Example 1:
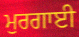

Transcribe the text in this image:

ਮੁਰਗਾਈ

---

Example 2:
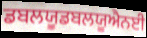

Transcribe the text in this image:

ਡਬਲਯੂਡਬਲਯੂਐਨਈ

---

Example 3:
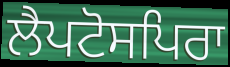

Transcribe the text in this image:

ਲੈਪਟੋਸਪਿਰਾ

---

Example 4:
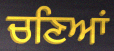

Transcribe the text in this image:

ਚਣਿਆਂ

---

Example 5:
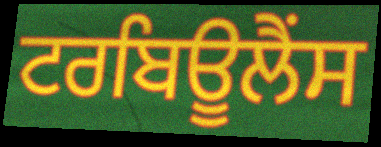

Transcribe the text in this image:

ਟਰਬਿਊਲੈਂਸ